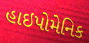
હાઇપોમેનિક